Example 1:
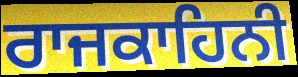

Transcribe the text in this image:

ਰਾਜਕਾਹਿਨੀ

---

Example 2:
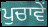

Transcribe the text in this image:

ਪੁਚਾਵੇਂ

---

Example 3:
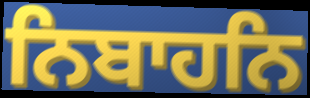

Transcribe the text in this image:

ਨਿਬਾਹਨਿ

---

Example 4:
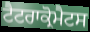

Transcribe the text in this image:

ਟੈਟਰਾਕ੍ਰੋਮੈਟਸ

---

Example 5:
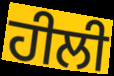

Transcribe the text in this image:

ਹੀਲੀ